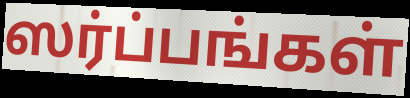
ஸர்ப்பங்கள்